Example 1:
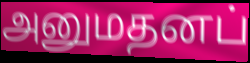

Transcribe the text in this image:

அனுமதனப்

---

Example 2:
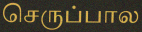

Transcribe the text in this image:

செருப்பால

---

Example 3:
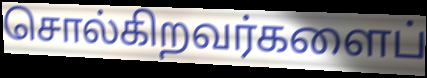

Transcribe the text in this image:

சொல்கிறவர்களைப்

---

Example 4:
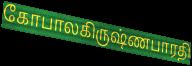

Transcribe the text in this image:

கோபாலகிருஷ்ணபாரதி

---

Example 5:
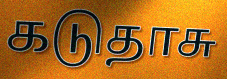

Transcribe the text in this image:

கடுதாசு